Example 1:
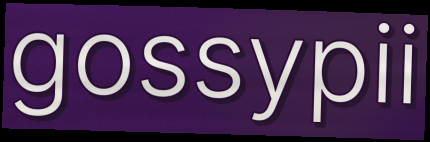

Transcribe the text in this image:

gossypii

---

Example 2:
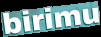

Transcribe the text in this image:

birimu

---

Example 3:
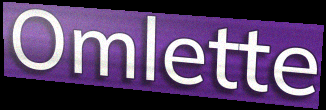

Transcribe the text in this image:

Omlette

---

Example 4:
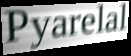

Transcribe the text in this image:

Pyarelal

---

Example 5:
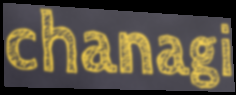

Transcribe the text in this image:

chanagi